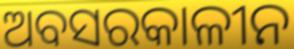
ଅବସରକାଳୀନ